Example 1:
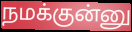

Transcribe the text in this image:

நமக்குன்னு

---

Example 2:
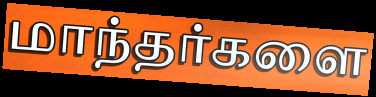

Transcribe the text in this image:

மாந்தர்களை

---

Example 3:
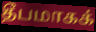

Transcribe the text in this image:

தீபமாகக்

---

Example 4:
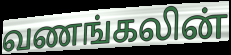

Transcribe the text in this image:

வணங்கலின்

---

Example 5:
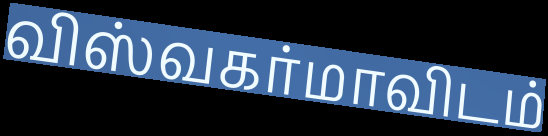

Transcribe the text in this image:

விஸ்வகர்மாவிடம்